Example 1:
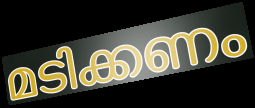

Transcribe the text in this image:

മടിക്കണം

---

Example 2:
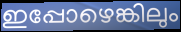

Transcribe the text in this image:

ഇപ്പോഴെങ്കിലും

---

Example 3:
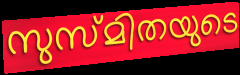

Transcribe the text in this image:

സുസ്മിതയുടെ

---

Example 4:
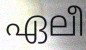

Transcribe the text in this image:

ഏലീ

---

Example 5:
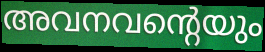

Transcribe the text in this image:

അവനവന്റെയും